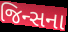
જિન્સના